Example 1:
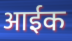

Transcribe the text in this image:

आईक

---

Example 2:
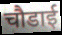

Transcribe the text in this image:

चौडाई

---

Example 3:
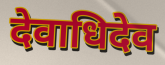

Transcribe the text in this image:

देवाधिदेव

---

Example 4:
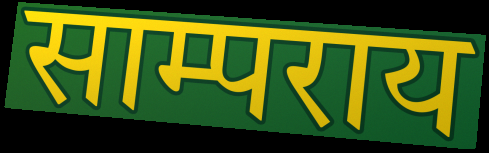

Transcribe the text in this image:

साम्पराय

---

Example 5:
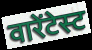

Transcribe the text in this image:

वारेंटेस्ट